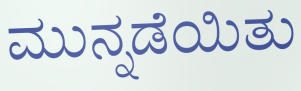
ಮುನ್ನಡೆಯಿತು